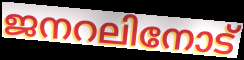
ജനറലിനോട്